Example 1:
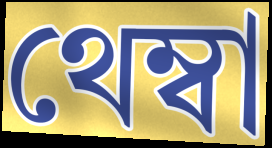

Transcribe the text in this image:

থেম্বা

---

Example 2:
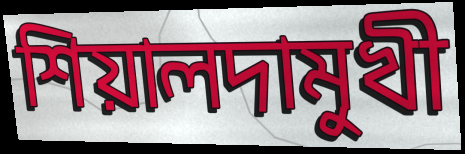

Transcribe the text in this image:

শিয়ালদামুখী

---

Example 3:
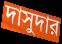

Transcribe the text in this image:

দাসুদার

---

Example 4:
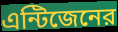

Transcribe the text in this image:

এন্টিজেনের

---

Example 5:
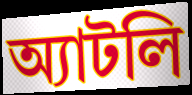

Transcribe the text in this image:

অ্যাটলি